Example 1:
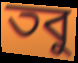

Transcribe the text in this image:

তবু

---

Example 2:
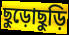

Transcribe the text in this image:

ছুড়োছুড়ি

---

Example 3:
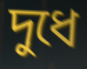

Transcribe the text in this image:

দুধে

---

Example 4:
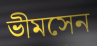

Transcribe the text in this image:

ভীমসেন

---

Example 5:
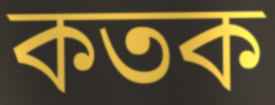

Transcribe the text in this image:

কতক